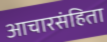
आचारसंहिता